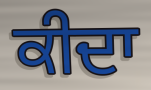
ਕੀਦਾ